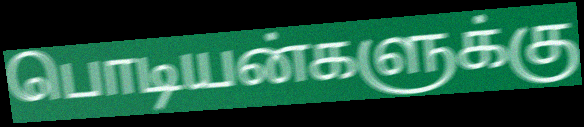
பொடியன்களுக்கு